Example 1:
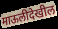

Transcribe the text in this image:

माऊलीदेखील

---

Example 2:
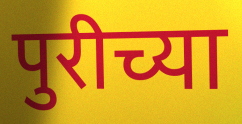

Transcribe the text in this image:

पुरीच्या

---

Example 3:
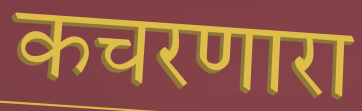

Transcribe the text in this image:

कचरणारा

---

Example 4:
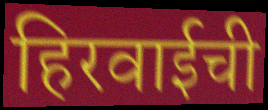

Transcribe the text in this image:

हिरवाईची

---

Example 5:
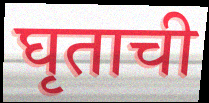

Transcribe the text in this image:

घृताची